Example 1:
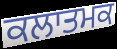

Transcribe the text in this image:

ਕਲਾਤਮਕ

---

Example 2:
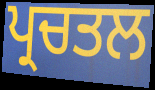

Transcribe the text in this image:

ਪ੍ਰਚਤਲ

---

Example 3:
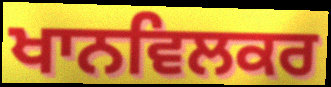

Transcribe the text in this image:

ਖਾਨਵਿਲਕਰ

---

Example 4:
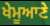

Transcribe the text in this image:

ਖੇਮੂਆਣੇ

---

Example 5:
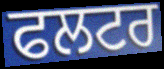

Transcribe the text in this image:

ਫਲਟਰ